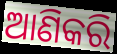
ଆଣିକରି